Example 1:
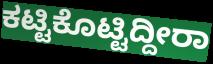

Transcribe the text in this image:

ಕಟ್ಟಿಕೊಟ್ಟಿದ್ದೀರಾ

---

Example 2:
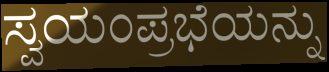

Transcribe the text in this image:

ಸ್ವಯಂಪ್ರಭೆಯನ್ನು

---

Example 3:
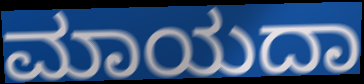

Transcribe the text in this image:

ಮಾಯದಾ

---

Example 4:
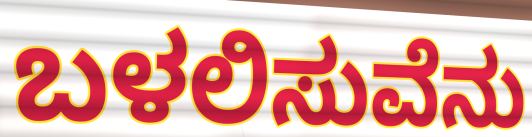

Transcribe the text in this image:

ಬಳಲಿಸುವೆನು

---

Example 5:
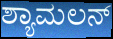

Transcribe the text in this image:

ಶ್ಯಾಮಲನ್